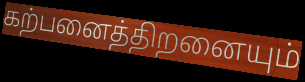
கற்பனைத்திறனையும்